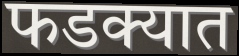
फडक्यात